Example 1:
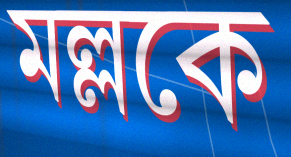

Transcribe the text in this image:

মল্লকে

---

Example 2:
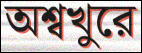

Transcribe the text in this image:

অশ্বখুরে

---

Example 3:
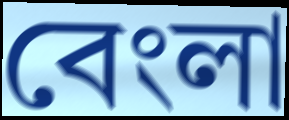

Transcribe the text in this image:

বেংলা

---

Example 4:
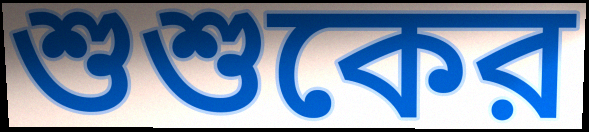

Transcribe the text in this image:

শুশুকের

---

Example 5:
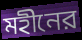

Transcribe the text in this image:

মহীনের